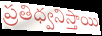
ప్రతిధ్వనిస్తాయి